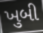
ખુબી